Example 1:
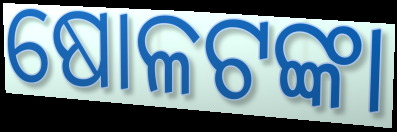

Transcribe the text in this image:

ଷୋଳଟଙ୍କା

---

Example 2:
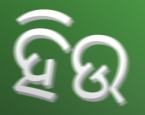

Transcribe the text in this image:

ହିଉ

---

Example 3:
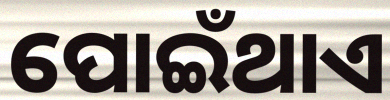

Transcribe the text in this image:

ପୋଇଁଥାଏ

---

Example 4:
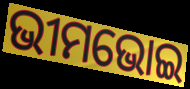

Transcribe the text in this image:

ଭୀମଭୋଇ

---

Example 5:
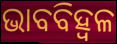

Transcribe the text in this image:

ଭାବବିହ୍ବଳ